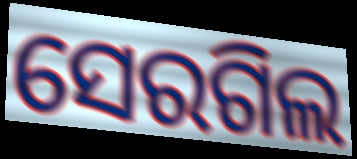
ସେରଗିଲ